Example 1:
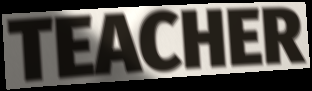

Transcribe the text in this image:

TEACHER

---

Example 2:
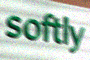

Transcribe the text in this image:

softly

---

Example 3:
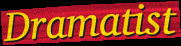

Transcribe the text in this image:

Dramatist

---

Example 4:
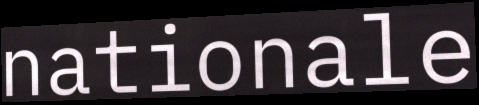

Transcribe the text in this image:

nationale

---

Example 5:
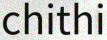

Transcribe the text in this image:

chithi